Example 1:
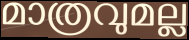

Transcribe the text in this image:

മാത്രവുമല്ല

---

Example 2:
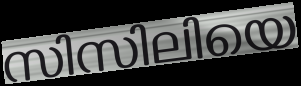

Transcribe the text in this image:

സിസിലിയെ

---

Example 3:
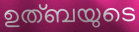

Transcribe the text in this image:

ഉത്ബയുടെ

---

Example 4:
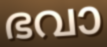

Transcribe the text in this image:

ഭവാ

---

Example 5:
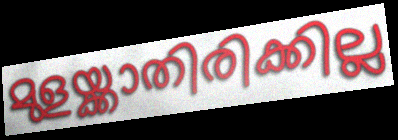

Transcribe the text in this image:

മുളയ്ക്കാതിരിക്കില്ല